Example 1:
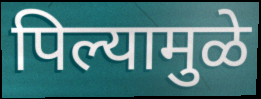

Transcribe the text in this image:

पिल्यामुळे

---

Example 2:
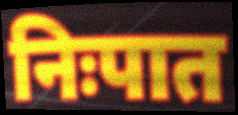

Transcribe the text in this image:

निःपात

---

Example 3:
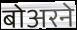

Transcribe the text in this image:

बोअरने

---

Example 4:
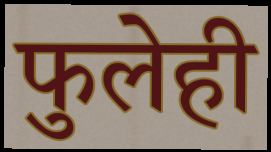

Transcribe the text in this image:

फुलेही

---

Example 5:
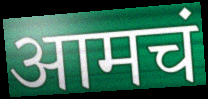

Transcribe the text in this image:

आमचं